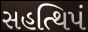
સહત્થિપં